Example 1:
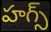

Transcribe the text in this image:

హగ్స్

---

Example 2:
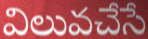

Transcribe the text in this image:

విలువచేసే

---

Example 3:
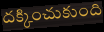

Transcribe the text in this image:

దక్కించుకుంది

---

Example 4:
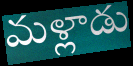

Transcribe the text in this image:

మళ్లాడు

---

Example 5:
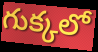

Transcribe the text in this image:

గుక్కలో